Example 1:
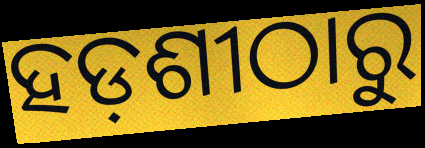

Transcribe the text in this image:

ହଡ଼ଶୀଠାରୁ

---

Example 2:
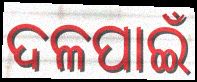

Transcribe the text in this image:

ଦଳପାଇଁ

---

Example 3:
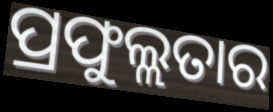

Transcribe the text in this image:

ପ୍ରଫୁଲ୍ଲତାର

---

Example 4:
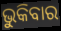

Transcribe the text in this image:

ଭୁକିବାର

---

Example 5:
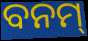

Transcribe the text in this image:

ବନମ୍